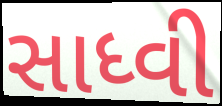
સાધ્વી